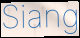
Siang